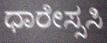
ಧಾರೇಸ್ಸಸಿ